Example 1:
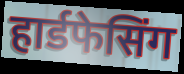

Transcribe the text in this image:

हार्डफेसिंग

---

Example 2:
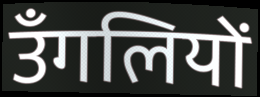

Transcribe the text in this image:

उँगलियों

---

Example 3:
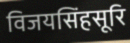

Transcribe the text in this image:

विजयसिंहसूरि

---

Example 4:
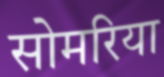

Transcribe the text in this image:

सोमरिया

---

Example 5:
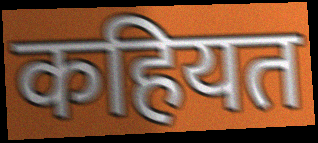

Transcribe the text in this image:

कहियत